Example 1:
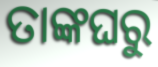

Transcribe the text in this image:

ତାଙ୍କଘରୁ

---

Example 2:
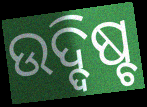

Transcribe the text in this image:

ଉଦ୍ଦିଷ୍ଚ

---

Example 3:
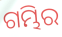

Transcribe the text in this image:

ଗମ୍ଭିର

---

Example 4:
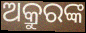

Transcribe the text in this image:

ଅକ୍ରୁରଙ୍କ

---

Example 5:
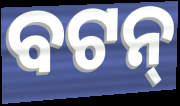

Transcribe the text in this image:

ବଟନ୍